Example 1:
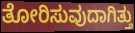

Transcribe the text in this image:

ತೋರಿಸುವುದಾಗಿತ್ತು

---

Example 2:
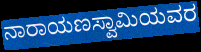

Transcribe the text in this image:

ನಾರಾಯಣಸ್ವಾಮಿಯವರ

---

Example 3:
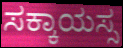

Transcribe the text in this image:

ಸಕ್ಕಾಯಸ್ಸ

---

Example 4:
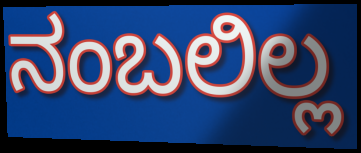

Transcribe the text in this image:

ನಂಬಲಿಲ್ಲ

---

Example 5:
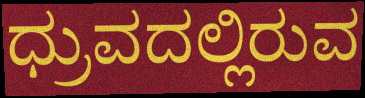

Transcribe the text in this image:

ಧ್ರುವದಲ್ಲಿರುವ